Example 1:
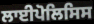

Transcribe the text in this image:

ਲਾਈਪੋਲਿਸਿਸ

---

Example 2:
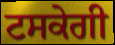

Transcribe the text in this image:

ਟਸਕੇਗੀ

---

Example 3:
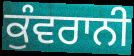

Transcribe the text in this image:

ਕੁੰਵਰਾਨੀ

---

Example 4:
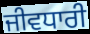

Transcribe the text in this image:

ਜੀਵਧਾਰੀ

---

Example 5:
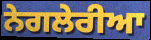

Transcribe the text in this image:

ਨੇਗਲੇਰੀਆ